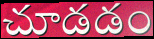
చూడడం